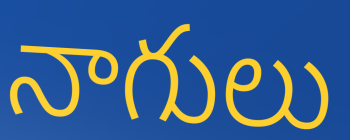
నాగులు